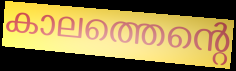
കാലത്തെന്റെ